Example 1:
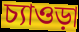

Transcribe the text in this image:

চ্যাওড়া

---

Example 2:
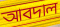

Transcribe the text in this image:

আবদাল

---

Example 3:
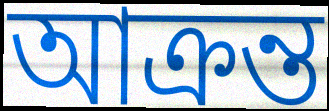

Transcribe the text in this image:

আক্রন্ত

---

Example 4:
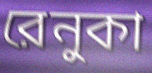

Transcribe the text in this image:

রেনুকা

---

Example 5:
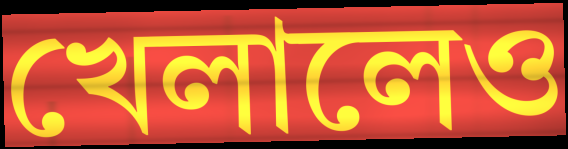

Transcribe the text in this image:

খেলালেও